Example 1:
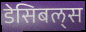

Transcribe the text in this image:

डेसिबल्स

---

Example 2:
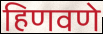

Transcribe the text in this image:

हिणवणे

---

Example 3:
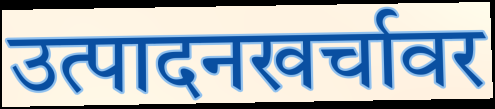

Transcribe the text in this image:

उत्पादनखर्चावर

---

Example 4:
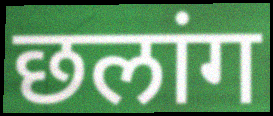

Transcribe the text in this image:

छलांग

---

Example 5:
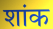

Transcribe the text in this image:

शांक